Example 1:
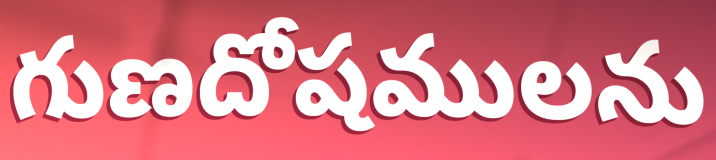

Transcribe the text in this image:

గుణదోషములను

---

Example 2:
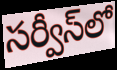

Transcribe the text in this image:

సర్వీస్‌లో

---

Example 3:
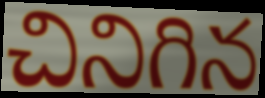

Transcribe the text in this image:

చినిగిన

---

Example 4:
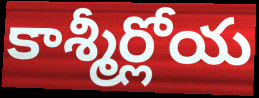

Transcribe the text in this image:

కాశ్మీర్లోయ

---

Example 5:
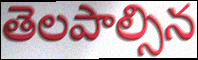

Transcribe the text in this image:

తెలపాల్సిన